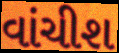
વાંચીશ